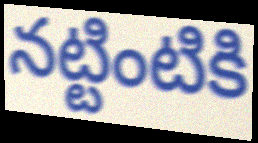
నట్టింటికి